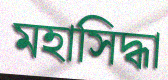
মহাসিদ্ধা